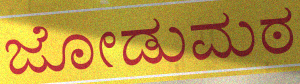
ಜೋಡುಮಠ